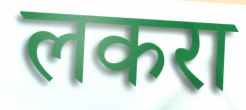
लकरा